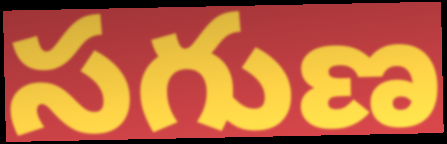
సగుణ